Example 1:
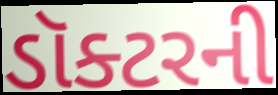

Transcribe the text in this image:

ડૉક્ટરની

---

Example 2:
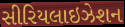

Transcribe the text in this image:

સીરિયલાઇઝેશન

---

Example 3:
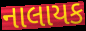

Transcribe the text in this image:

નાલાયક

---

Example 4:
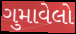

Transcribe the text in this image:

ગુમાવેલો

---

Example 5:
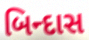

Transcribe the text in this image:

બિન્દાસ